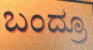
ಬಂದ್ರೂ